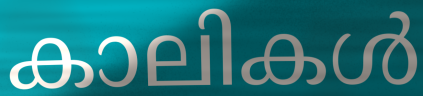
കാലികൾ